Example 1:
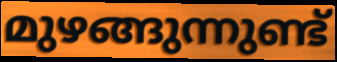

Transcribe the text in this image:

മുഴങ്ങുന്നുണ്ട്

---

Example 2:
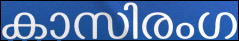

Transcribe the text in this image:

കാസിരംഗ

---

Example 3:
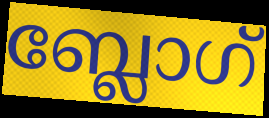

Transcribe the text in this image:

ബ്ലോഗ്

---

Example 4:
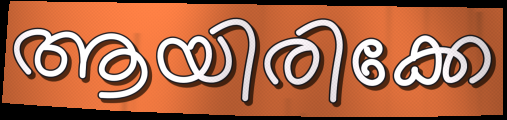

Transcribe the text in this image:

ആയിരിക്കേ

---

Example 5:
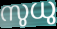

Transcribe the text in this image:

സുധു